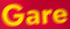
Gare